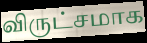
விருட்சமாக